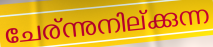
ചേര്ന്നുനില്ക്കുന്ന